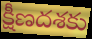
క్షీణదశకు